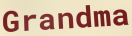
Grandma